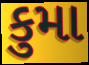
કુમા